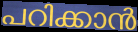
പറിക്കാൻ